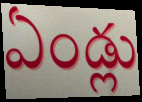
ఏండ్లు